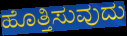
ಹೊತ್ತಿಸುವುದು